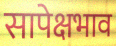
सापेक्षभाव